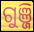
ଗୁଞ୍ଜି